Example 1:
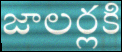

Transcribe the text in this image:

జాలర్లకి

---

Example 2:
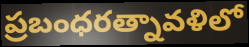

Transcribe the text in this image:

ప్రబంధరత్నావళిలో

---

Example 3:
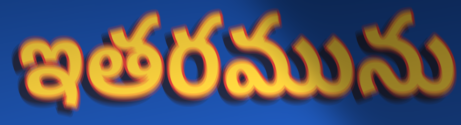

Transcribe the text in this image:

ఇతరమును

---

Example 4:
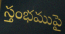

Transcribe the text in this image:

స్తంభముపై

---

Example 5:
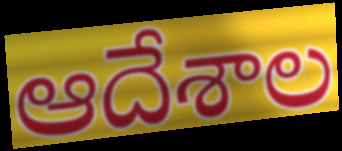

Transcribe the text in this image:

ఆదేశాల